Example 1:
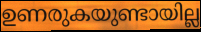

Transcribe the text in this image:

ഉണരുകയുണ്ടായില്ല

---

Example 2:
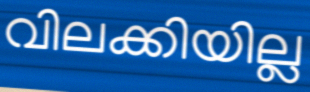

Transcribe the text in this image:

വിലക്കിയില്ല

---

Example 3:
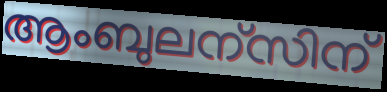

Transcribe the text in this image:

ആംബുലന്സിന്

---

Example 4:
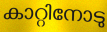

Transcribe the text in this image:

കാറ്റിനോടു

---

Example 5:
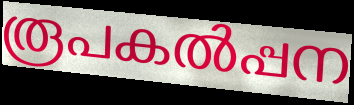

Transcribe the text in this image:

രൂപകൽപ്പന